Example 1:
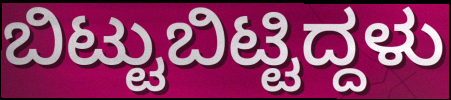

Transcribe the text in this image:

ಬಿಟ್ಟುಬಿಟ್ಟಿದ್ದಳು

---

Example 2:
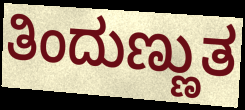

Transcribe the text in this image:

ತಿಂದುಣ್ಣುತ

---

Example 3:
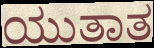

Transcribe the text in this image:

ಯುತಾತ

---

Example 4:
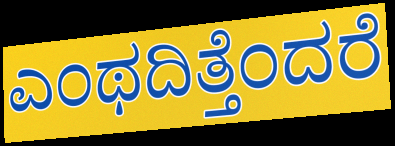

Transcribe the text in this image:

ಎಂಥದಿತ್ತೆಂದರೆ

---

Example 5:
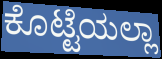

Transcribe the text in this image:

ಕೊಟ್ಟೆಯಲ್ಲಾ